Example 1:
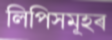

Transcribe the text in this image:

লিপিসমূহৰ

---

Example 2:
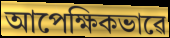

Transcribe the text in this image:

আপেক্ষিকভাৱে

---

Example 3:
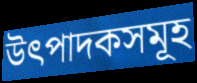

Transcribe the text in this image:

উৎপাদকসমূহ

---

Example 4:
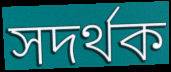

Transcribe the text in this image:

সদৰ্থক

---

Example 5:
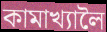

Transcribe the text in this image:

কামাখ্যালৈ